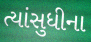
ત્યાંસુધીના